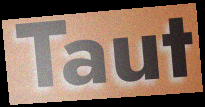
Taut